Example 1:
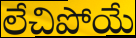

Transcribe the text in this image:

లేచిపోయే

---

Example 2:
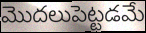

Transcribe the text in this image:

మొదలుపెట్టడమే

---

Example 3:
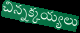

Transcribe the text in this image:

చిన్నక్కయ్యలు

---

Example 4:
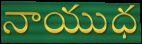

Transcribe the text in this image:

నాయుధ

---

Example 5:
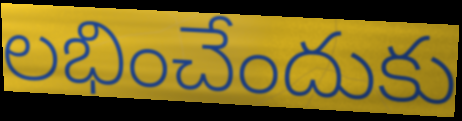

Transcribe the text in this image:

లభించేందుకు